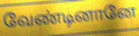
வேண்டினானே